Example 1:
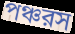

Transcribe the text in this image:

পঞ্চরস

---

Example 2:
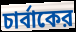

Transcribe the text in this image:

চার্বাকের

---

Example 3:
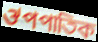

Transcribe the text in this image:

ঔপপাতিক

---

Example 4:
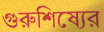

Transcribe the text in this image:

গুরুশিষ্যের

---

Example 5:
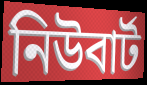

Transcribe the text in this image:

নিউবার্ট